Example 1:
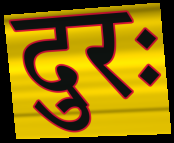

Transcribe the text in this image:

दुरः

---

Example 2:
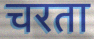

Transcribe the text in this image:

चरता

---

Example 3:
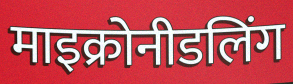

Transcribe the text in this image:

माइक्रोनीडलिंग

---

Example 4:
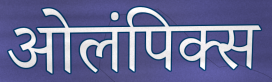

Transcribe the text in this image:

ओलंपिक्स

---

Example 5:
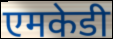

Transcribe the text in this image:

एमकेडी